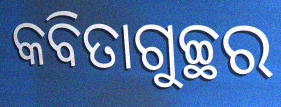
କବିତାଗୁଚ୍ଛର